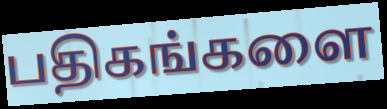
பதிகங்களை